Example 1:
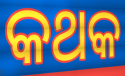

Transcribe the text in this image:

କଥକ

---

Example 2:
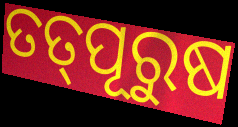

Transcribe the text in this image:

ତତ୍‌ପୂରୁଷ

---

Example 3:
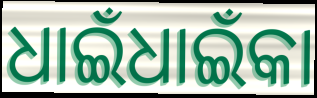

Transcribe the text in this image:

ଧାଇଁଧାଇଁକା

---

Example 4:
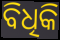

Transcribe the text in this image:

ବିଧିକି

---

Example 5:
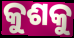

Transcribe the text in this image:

କୁଶକୁ